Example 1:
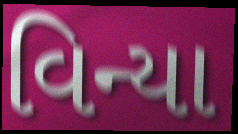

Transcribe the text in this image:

વિન્યા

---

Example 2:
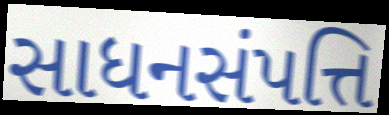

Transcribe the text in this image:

સાધનસંપત્તિ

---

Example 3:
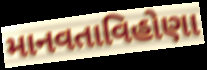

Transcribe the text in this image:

માનવતાવિહોણા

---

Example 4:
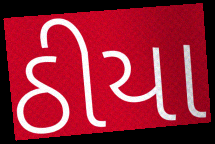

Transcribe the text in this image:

ઠીયા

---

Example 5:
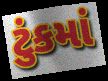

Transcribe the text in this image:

ટુંકમાં